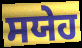
ਸਯੇਹ